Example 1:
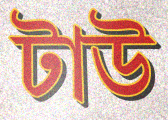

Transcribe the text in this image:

টাউ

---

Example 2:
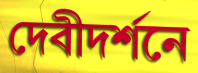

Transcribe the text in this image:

দেবীদর্শনে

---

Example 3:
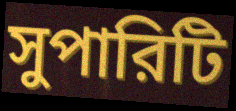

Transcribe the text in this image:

সুপারিটি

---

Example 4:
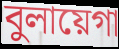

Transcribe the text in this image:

বুলায়েগা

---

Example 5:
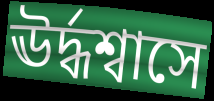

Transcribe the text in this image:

ঊর্দ্ধশ্বাসে